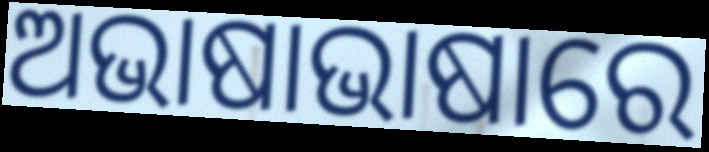
ଅଭାଷାଭାଷାରେ